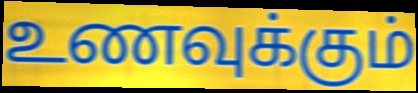
உணவுக்கும்